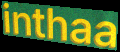
inthaa